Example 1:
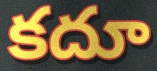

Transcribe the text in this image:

కదూ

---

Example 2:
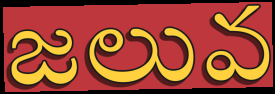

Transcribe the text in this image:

జలువ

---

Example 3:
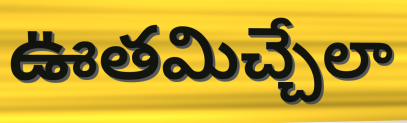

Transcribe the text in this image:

ఊతమిచ్చేలా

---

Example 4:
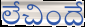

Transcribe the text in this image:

లేచిందే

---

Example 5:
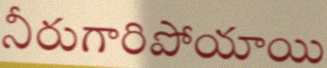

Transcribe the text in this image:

నీరుగారిపోయాయి